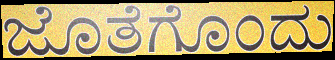
ಜೊತೆಗೊಂದು